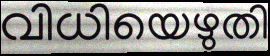
വിധിയെഴുതി